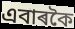
এবাৰকৈ